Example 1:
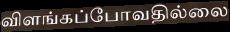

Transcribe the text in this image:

விளங்கப்போவதில்லை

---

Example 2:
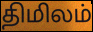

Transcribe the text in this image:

திமிலம்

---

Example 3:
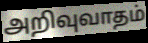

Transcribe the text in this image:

அறிவுவாதம்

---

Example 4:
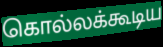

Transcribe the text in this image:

கொல்லக்கூடிய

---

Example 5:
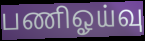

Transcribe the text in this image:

பணிஓய்வு